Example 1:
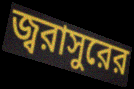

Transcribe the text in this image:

জ্বরাসুরের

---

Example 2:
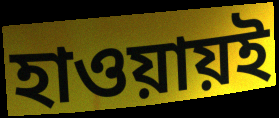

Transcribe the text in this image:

হাওয়ায়ই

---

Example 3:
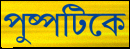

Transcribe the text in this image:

পুষ্পটিকে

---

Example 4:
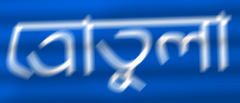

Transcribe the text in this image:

ত্রোতুলা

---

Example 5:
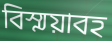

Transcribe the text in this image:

বিস্ময়াবহ